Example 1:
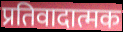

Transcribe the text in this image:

प्रतिवादात्मक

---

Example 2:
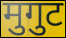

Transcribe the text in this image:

मुगुट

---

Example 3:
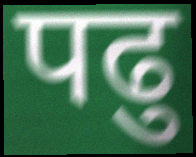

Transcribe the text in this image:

पढु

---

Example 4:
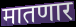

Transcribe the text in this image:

मातणार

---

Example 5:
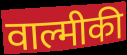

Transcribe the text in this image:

वाल्मीकी